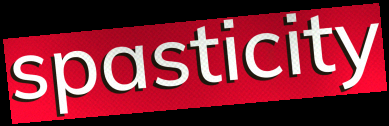
spasticity